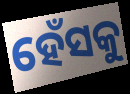
ହେଁସକୁ